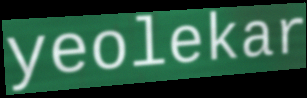
yeolekar